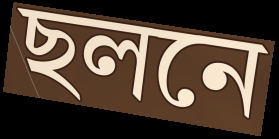
ছলনে